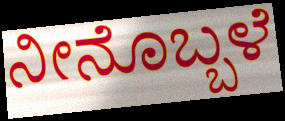
ನೀನೊಬ್ಬಳೆ